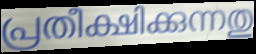
പ്രതീക്ഷിക്കുന്നതു